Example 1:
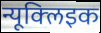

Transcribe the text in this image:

न्यूक्‍लिइक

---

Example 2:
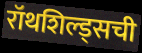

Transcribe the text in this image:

रॉथशिल्ड्सची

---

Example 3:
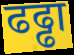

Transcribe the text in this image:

ढढ्ढा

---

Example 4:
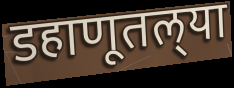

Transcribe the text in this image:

डहाणूतल्या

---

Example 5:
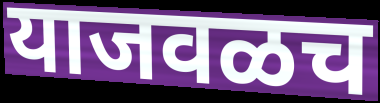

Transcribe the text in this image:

याजवळच